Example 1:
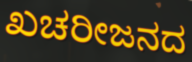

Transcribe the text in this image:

ಖಚರೀಜನದ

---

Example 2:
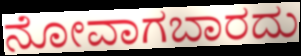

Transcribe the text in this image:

ನೋವಾಗಬಾರದು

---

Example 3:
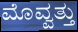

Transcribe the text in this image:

ಮೊವ್ವತ್ತು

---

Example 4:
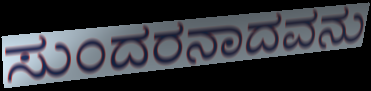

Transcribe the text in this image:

ಸುಂದರನಾದವನು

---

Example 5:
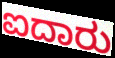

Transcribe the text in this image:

ಐದಾರು